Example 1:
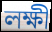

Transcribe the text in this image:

লক্ষী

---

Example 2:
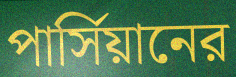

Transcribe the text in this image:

পার্সিয়ানের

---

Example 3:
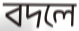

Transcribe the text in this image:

বদলে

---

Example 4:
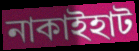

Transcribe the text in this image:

নাকাইহাট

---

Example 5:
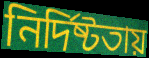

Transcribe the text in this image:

নির্দিষ্টতায়